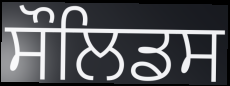
ਸੌਲਿਡਸ